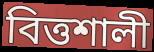
বিত্তশালী